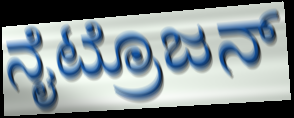
ನೈಟ್ರೊಜನ್